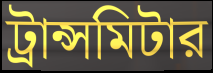
ট্রান্সমিটার